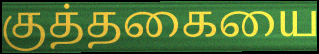
குத்தகையை